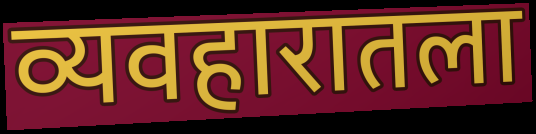
व्यवहारातला